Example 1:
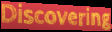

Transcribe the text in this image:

Discovering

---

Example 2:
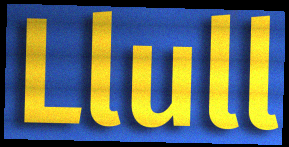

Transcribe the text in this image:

Llull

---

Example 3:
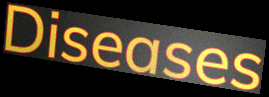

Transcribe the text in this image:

Diseases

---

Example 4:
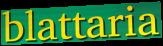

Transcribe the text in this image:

blattaria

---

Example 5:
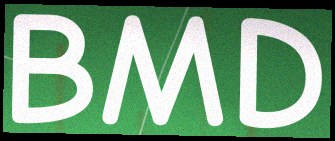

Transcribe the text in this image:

BMD